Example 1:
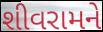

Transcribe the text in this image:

શીવરામને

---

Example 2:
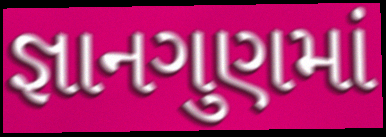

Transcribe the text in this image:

જ્ઞાનગુણમાં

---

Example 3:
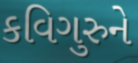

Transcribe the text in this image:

કવિગુરુને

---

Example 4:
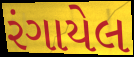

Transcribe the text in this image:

રંગાયેલ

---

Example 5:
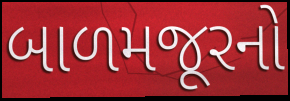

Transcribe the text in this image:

બાળમજૂરનો